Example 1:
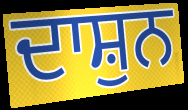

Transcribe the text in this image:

ਦਾਸ਼ੁਨ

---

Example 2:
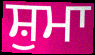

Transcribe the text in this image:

ਸ਼ੁਮਾ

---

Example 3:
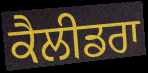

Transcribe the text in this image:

ਕੈਲੀਡਰਾ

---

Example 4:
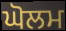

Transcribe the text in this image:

ਘੋਲਮ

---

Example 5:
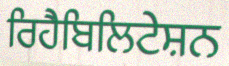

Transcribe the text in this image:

ਰਿਹੈਬਿਲਿਟੇਸ਼ਨ